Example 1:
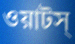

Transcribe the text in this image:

ওয়াটস্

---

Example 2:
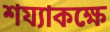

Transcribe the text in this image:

শয্যাকক্ষে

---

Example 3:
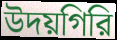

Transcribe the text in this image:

উদয়গিরি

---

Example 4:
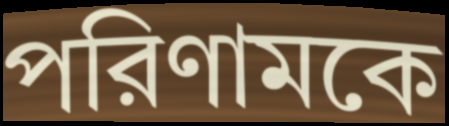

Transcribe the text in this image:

পরিণামকে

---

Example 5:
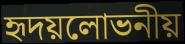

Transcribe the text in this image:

হৃদয়লোভনীয়